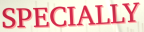
SPECIALLY